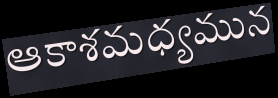
ఆకాశమధ్యమున